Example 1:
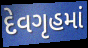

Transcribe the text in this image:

દેવગૃહમાં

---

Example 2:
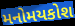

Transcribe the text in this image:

મનોમયકોશ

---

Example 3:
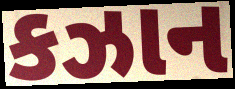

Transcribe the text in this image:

કઝાન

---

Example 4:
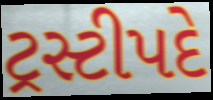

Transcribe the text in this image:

ટ્રસ્ટીપદે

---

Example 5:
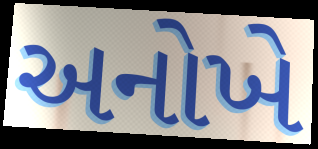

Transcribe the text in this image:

અનોખે